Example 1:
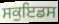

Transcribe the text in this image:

ਸਕੁਇਡਸ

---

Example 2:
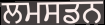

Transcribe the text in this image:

ਲਮਸਡਨ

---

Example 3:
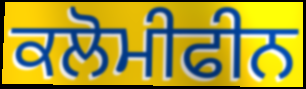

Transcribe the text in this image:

ਕਲੋਮੀਫੀਨ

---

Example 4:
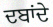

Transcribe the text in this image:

ਦਬਾਂਦੇ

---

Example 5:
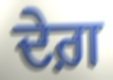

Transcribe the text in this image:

ਦੇਗ਼